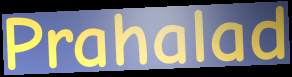
Prahalad